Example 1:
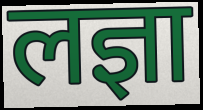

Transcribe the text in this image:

लज्ञा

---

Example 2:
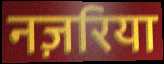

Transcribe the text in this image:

नज़रिया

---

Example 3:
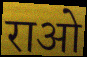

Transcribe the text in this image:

राओ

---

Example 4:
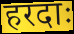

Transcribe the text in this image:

हरदाः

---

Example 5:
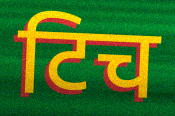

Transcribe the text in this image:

टिच